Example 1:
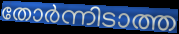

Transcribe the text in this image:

തോർന്നിടാത്ത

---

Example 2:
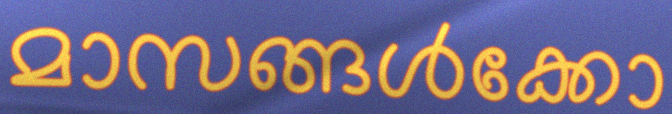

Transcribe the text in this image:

മാസങ്ങൾക്കോ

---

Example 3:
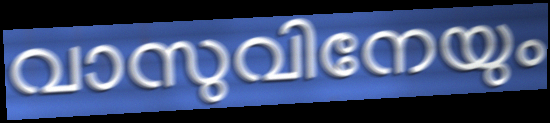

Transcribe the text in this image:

വാസുവിനേയും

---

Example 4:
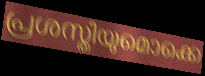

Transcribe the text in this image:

പ്രശസ്തിയുമൊക്കെ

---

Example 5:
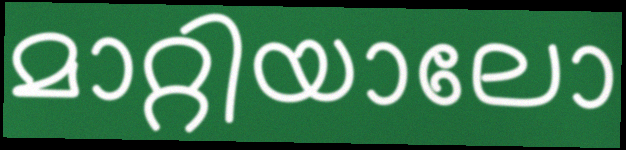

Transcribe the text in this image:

മാറ്റിയാലോ